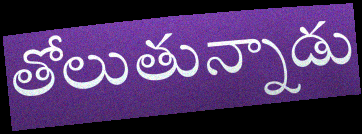
తోలుతున్నాడు